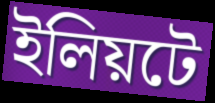
ইলিয়টে